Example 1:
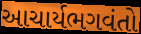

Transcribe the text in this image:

આચાર્યભગવંતો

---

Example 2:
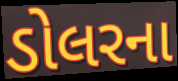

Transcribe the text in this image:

ડોલરના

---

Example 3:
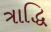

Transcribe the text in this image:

ત્રાદ્ધિ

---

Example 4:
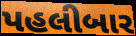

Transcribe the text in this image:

પહલીબાર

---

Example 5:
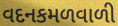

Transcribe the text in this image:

વદનકમળવાળી